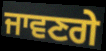
ਜਾਵਣਗੇ